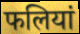
फलियां